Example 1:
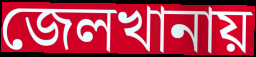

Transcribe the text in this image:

জেলখানায়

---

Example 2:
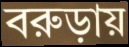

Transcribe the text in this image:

বরুড়ায়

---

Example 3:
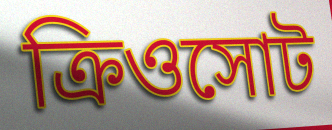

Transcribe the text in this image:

ক্রিওসোট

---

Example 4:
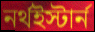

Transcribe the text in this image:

নর্থইস্টার্ন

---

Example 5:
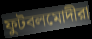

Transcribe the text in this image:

ফুটবলমোদীরা